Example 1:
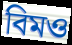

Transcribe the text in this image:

বিমও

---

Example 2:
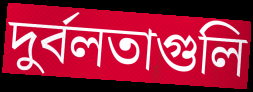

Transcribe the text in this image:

দুর্বলতাগুলি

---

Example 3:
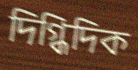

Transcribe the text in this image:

দিগ্ধিদিক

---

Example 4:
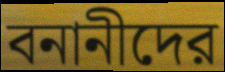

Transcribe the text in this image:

বনানীদের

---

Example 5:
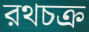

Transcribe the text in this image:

রথচক্র